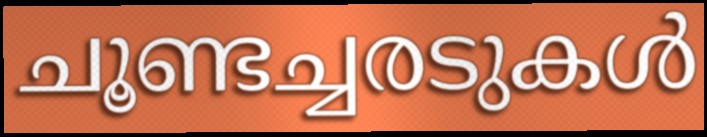
ചൂണ്ടച്ചരടുകൾ